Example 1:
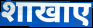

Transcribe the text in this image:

शाखाए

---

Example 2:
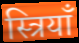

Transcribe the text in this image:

स्‍त्रियाँ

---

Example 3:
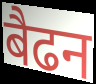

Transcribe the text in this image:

बैढन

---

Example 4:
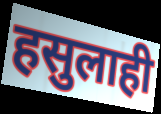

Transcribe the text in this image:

हसुलाही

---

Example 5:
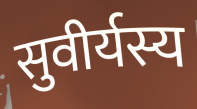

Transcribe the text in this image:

सुवीर्यस्य